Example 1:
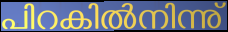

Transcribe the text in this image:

പിറകിൽനിന്നു്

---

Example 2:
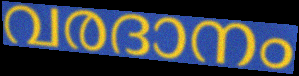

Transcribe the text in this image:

വരദാനം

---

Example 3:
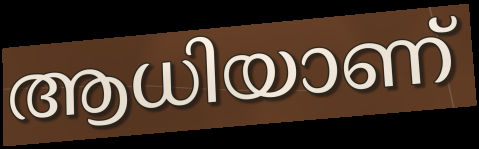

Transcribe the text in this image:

ആധിയാണ്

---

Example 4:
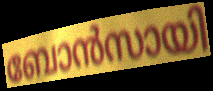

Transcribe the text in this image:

ബോൻസായി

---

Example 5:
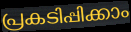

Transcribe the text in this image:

പ്രകടിപ്പിക്കാം